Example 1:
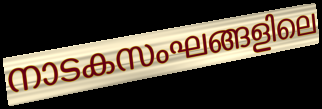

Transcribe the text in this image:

നാടകസംഘങ്ങളിലെ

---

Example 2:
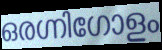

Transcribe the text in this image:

ഒരഗ്നിഗോളം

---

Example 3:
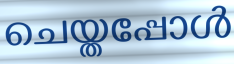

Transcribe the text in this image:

ചെയ്തപ്പോൾ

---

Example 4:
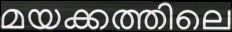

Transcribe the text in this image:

മയക്കത്തിലെ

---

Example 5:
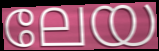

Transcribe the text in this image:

ലേയ